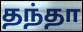
தந்தா